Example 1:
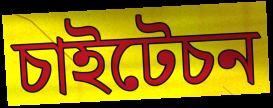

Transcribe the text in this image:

চাইটেচন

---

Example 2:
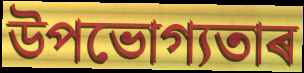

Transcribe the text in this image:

উপভোগ্যতাৰ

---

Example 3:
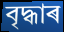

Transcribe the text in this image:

বৃদ্ধাৰ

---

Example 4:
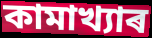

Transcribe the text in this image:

কামাখ্যাৰ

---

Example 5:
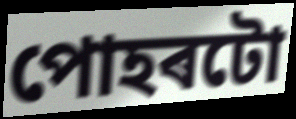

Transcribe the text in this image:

পোহৰটো